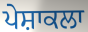
ਪੇਸ਼ਾਕਲਾ